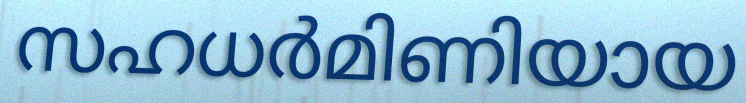
സഹധർമിണിയായ